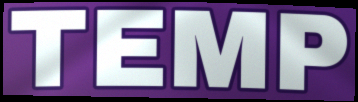
TEMP